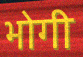
भोगी